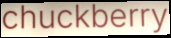
chuckberry